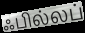
ஃபில்லப்